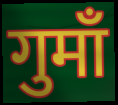
गुमाँ